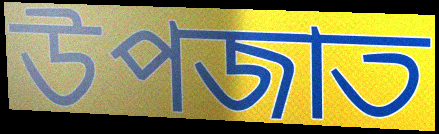
উপজাত